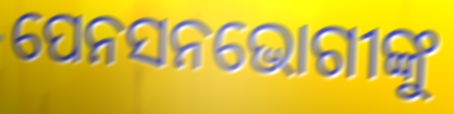
ପେନସନଭୋଗୀଙ୍କୁ